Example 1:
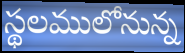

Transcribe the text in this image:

స్థలములోనున్న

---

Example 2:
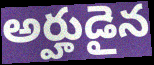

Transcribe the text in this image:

అర్హుడైన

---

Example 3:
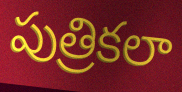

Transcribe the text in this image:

పుత్రికలా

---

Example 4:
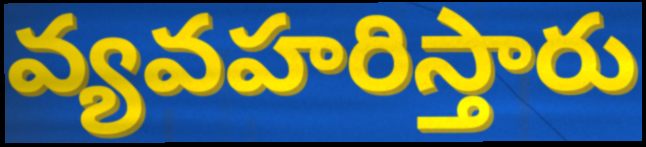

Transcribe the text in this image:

వ్యవహరిస్తారు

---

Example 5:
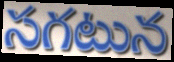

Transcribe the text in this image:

సగటున